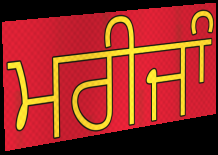
ਮਰੀਜਾੰ